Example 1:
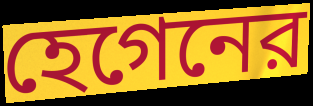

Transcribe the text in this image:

হেগেনের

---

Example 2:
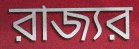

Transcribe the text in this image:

রাজ্যর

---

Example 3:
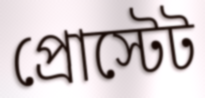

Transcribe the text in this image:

প্রোস্টেট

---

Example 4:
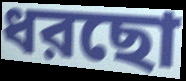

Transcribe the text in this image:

ধরছো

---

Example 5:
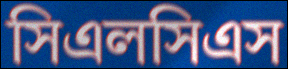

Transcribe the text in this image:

সিএলসিএস